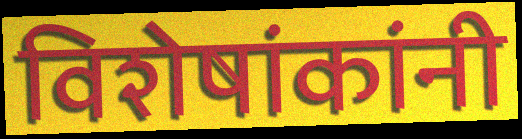
विशेषांकांनी